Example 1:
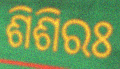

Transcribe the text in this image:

ଶିଶିରଃ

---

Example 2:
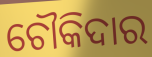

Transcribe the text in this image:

ଚୌକିଦାର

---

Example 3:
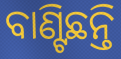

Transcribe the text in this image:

ବାଣ୍ଟିଛନ୍ତି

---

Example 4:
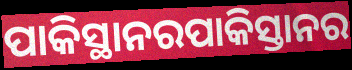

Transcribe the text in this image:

ପାକିସ୍ଥାନରପାକିସ୍ତାନର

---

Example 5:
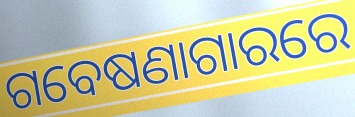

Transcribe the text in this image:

ଗବେଷଣାଗାରରେ